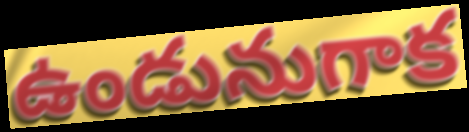
ఉండునుగాక